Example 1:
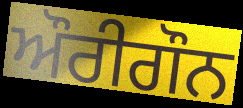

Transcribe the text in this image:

ਔਰੀਗੌਨ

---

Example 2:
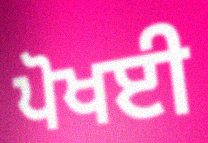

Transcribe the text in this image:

ਪੋਖਈ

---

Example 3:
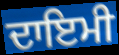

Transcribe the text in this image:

ਦਾਇਮੀ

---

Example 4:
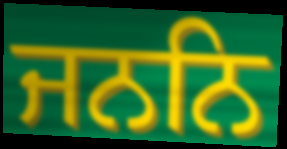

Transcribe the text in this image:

ਜਨਨਿ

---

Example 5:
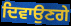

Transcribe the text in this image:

ਦਿਵਾਉਣਗੇ